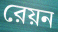
রেয়ন